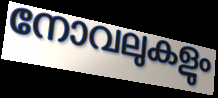
നോവലുകളും